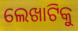
ଲେଖାଟିକୁ